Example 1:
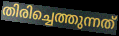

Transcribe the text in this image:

തിരിച്ചെത്തുന്നത്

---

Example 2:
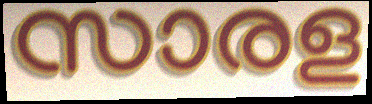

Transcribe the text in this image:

സാരള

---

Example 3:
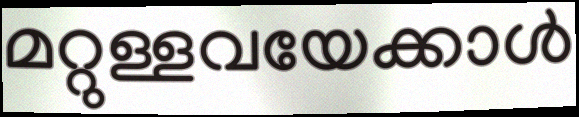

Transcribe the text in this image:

മറ്റുള്ളവയേക്കാൾ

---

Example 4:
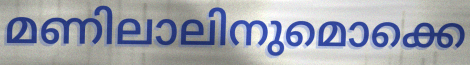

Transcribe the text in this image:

മണിലാലിനുമൊക്കെ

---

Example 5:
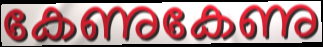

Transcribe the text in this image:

കേണുകേണു